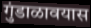
गुंडाळावयास